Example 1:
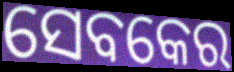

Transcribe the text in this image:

ସେବକେର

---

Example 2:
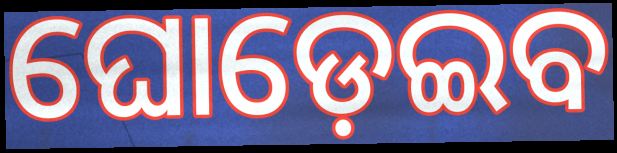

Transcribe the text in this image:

ଘୋଡ଼େଇବ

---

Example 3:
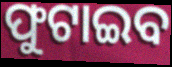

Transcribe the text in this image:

ଫୁଟାଇବ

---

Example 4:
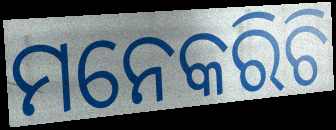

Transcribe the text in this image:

ମନେକରିଚି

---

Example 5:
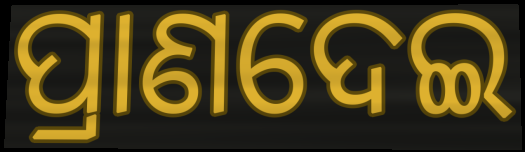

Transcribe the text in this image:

ପ୍ରାଣଦେଇ